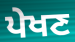
ਪੇਖਣ